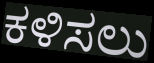
ಕಳಿಸಲು